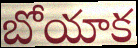
బోయాక